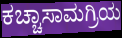
ಕಚ್ಚಾಸಾಮಗ್ರಿಯ